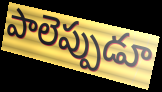
పాలెప్పుడూ